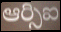
ఆర్సిఐ